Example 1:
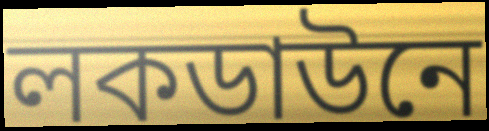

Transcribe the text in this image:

লকডাউনে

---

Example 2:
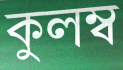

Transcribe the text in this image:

কুলম্ব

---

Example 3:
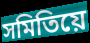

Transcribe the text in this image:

সমিতিয়ে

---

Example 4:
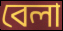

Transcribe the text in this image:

বেলা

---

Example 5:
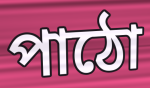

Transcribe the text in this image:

পাঠো